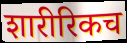
शारीरिकच